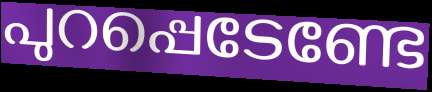
പുറപ്പെടേണ്ടേ